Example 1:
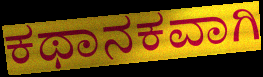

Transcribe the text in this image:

ಕಥಾನಕವಾಗಿ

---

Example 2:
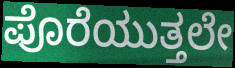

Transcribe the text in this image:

ಪೊರೆಯುತ್ತಲೇ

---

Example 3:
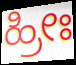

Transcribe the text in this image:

ಹ್ರೀಃ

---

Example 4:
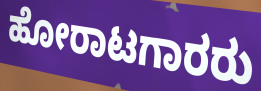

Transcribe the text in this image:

ಹೋರಾಟಗಾರರು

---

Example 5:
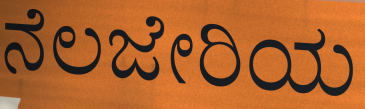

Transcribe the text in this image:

ನೆಲಜೇರಿಯ